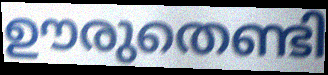
ഊരുതെണ്ടി